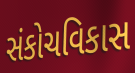
સંકોચવિકાસ